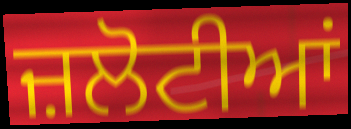
ਜ਼ਲੋਟੀਆਂ